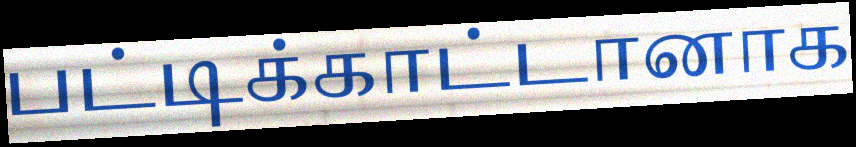
பட்டிக்காட்டானாக